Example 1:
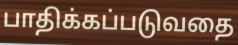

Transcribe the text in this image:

பாதிக்கப்படுவதை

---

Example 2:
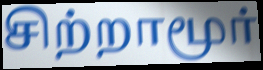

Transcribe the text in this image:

சிற்றாமூர்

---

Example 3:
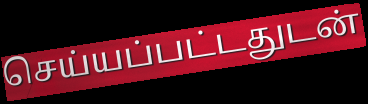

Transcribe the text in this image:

செய்யப்பட்டதுடன்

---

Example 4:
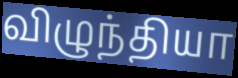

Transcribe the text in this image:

விழுந்தியா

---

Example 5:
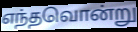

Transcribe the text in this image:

எந்தவொன்று